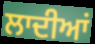
ਲਾਦੀਆਂ